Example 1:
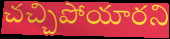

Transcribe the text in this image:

చచ్చిపోయారని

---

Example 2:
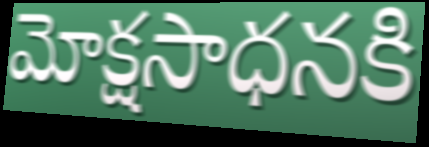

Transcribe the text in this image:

మోక్షసాధనకి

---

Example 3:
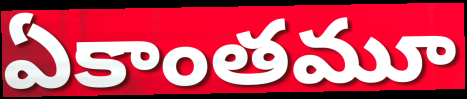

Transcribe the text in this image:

ఏకాంతమూ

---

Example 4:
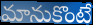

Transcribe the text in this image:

మానుకొంటే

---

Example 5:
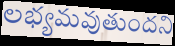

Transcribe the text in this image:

లభ్యమవుతుందని